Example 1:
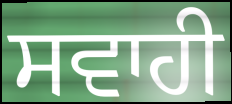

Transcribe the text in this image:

ਸਵਾਹੀ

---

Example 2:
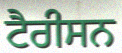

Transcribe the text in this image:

ਟੈਰੀਸਨ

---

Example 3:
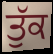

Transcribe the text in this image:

ਤੁੱਕ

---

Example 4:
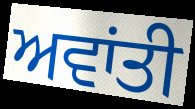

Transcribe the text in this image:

ਅਵਾਂਤੀ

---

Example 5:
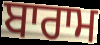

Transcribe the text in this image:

ਬਾਰਾਮ